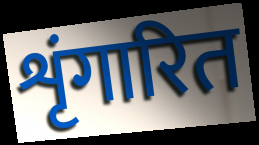
शृंगारित